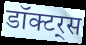
डॉक्टर्स